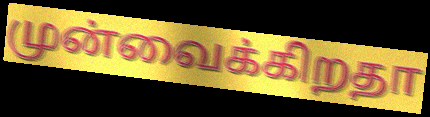
முன்வைக்கிறதா